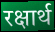
रक्षार्थ